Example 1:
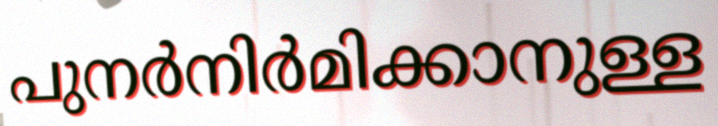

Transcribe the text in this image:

പുനർനിർമിക്കാനുള്ള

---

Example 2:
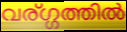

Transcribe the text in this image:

വര്ഗ്ഗത്തിൽ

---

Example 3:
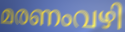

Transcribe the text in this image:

മരണംവഴി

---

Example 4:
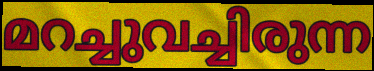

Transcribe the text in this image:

മറച്ചുവച്ചിരുന്ന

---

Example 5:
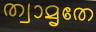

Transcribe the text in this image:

ത്വാമൃതേ